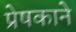
प्रेषकाने